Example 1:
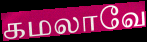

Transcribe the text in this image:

கமலாவே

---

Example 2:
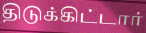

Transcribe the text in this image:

திடுக்கிட்டார்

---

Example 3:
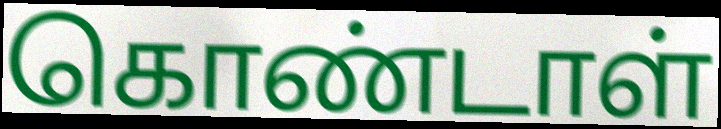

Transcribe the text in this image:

கொண்டாள்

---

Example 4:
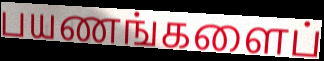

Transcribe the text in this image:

பயணங்களைப்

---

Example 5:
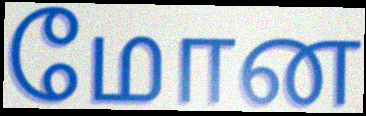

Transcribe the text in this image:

மோன